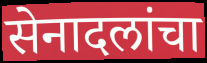
सेनादलांचा